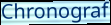
Chronograf